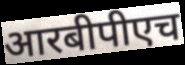
आरबीपीएच